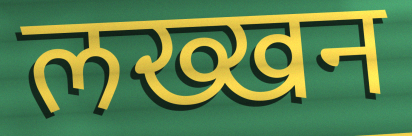
लख्खन